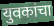
युवकांचा